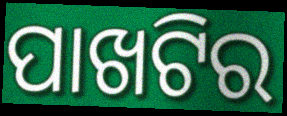
ପାଖଟିର